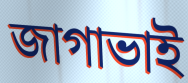
জাগাভাই